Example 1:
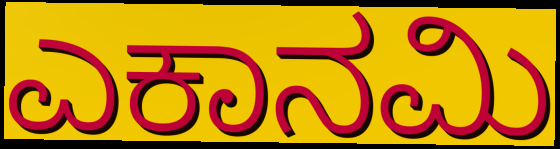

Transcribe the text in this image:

ಎಕಾನಮಿ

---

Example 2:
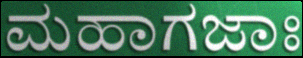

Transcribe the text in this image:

ಮಹಾಗಜಾಃ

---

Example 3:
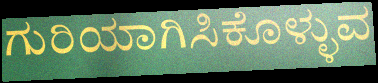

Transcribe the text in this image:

ಗುರಿಯಾಗಿಸಿಕೊಳ್ಳುವ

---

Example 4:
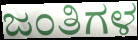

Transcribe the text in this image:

ಜಂತಿಗಳ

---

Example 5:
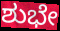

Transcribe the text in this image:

ಶುಭೇ